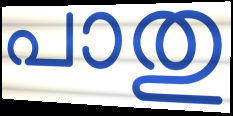
പാതു